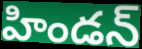
హిండన్